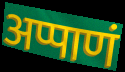
अप्पाणं